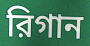
রিগান